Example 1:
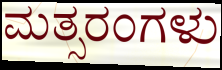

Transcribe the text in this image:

ಮತ್ಸರಂಗಳು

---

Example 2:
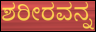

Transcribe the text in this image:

ಶರೀರವನ್ನ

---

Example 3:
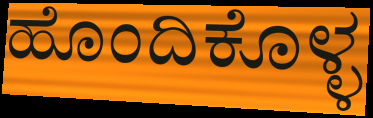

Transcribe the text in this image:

ಹೊಂದಿಕೊಳ್ಳ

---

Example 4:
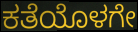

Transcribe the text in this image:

ಕತೆಯೊಳಗೇ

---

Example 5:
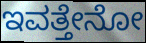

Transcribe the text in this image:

ಇವತ್ತೇನೋ